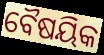
ବୈଷୟିକ